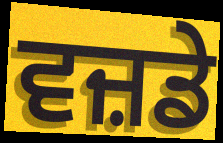
ਵਜ਼ਡੇ